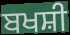
ਬਖਸ਼ੀ